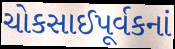
ચોકસાઈપૂર્વકનાં